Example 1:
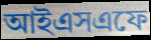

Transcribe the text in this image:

আইএসএফে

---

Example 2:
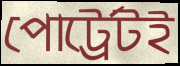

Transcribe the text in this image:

পোর্ট্রেটই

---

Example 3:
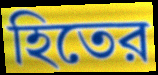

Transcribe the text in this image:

হিতের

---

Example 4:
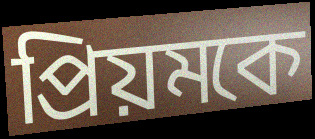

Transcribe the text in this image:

প্রিয়মকে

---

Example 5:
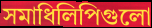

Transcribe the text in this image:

সমাধিলিপিগুলো